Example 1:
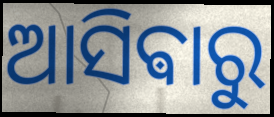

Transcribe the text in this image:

ଆସିଵାରୁ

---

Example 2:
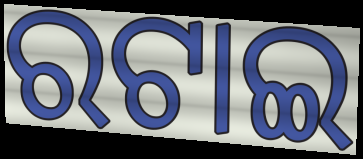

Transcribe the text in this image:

ରଟାଇ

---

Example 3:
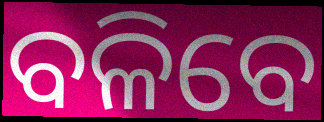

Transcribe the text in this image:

ବଳିବେ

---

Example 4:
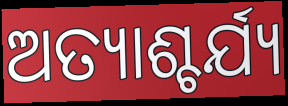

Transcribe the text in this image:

ଅତ୍ୟାଶ୍ଚର୍ଯ୍ୟ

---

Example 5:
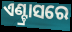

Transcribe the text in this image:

ଏଣ୍ଟ୍ରାସରେ